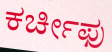
ಕರ್ಚೀಫು